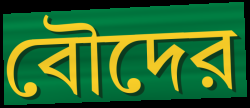
বৌদের